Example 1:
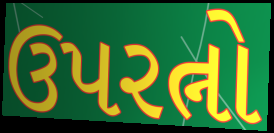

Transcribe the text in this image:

ઉપરત્નો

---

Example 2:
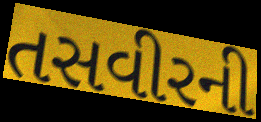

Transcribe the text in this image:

તસવીરની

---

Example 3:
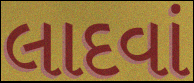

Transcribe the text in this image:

લાદવાં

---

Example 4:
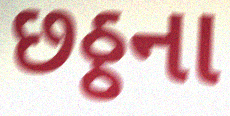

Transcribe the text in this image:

છઠ્ઠના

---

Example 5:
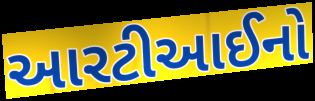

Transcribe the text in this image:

આરટીઆઈનો